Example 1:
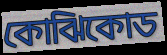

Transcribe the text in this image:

কোঝিকোড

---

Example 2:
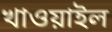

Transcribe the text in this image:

খাওয়াইল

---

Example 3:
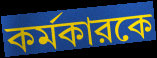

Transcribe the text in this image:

কর্মকারকে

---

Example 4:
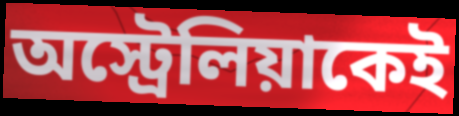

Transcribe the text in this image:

অস্ট্রেলিয়াকেই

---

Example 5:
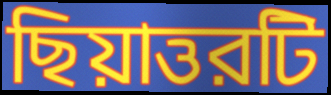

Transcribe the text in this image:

ছিয়াত্তরটি